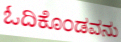
ಓದಿಕೊಂಡವನು